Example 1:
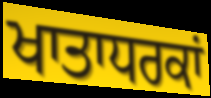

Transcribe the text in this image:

ਖਾਤਾਧਰਕਾਂ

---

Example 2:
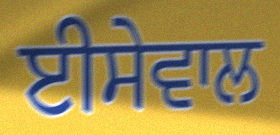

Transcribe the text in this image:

ਈਸੇਵਾਲ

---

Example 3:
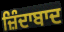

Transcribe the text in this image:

ਜ਼ਿੰਦਾਬਾਦ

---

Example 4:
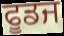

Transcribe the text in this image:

ਫੂਡਜ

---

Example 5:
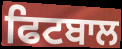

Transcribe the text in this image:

ਫਿਟਬਾਲ